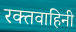
रक्तवाहिनी